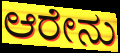
ಆರೇನು